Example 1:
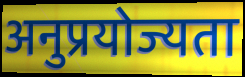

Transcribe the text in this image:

अनुप्रयोज्यता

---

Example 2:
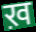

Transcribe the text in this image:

ख़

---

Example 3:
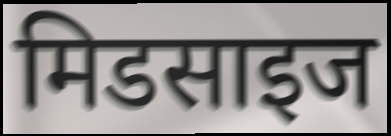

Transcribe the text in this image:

मिडसाइज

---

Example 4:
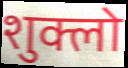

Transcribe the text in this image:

शुक्लो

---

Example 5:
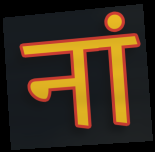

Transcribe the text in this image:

नां